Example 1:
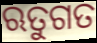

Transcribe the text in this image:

ଋତୁଗତ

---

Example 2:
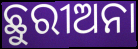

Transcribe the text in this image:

ଛୁରୀଅନା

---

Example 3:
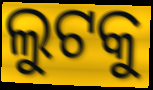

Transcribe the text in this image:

ଲୁଟକୁ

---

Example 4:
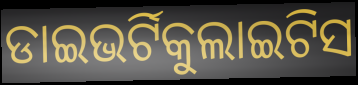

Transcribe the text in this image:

ଡାଇଭର୍ଟିକୁଲାଇଟିସ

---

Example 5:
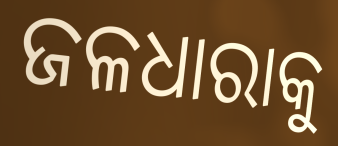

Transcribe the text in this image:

ଜଳଧାରାକୁ